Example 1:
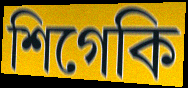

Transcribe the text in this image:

শিগেকি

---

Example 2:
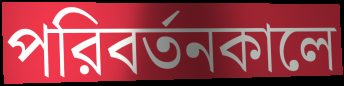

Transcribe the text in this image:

পরিবর্তনকালে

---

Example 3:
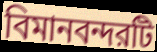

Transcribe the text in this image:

বিমানবন্দরটি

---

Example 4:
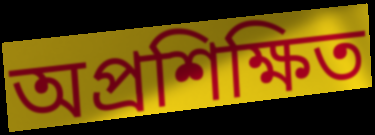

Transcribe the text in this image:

অপ্রশিক্ষিত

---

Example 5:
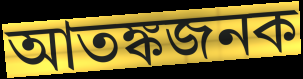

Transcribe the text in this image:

আতঙ্কজনক